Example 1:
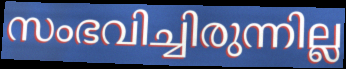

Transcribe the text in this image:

സംഭവിച്ചിരുന്നില്ല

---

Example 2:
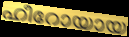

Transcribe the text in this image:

ഹീറോയായ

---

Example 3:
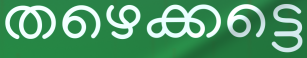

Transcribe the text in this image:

തഴെക്കട്ടെ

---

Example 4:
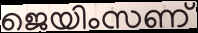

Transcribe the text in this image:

ജെയിംസണ്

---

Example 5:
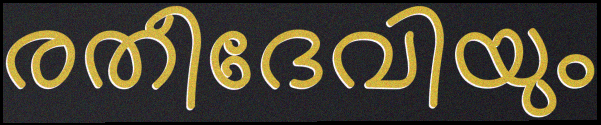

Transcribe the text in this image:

രതീദേവിയും